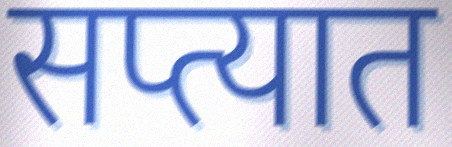
सप्त्यात